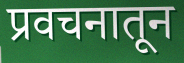
प्रवचनातून